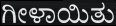
ಗೀಳಾಯಿತು